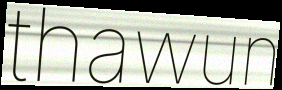
thawun